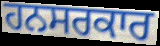
ਹਨਸਰਕਾਰ